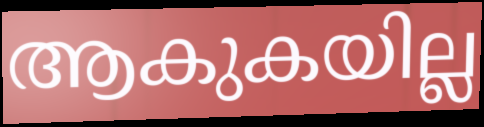
ആകുകയില്ല